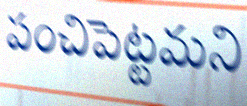
పంచిపెట్టమని